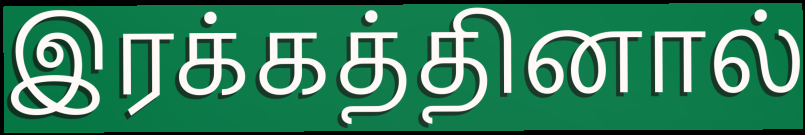
இரக்கத்தினால்